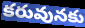
కరువునకు